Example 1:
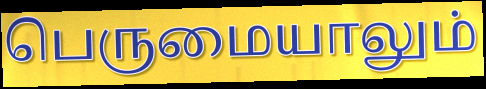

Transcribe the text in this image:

பெருமையாலும்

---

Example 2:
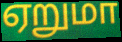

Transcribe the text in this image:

ஏறுமா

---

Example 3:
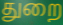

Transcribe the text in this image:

துறை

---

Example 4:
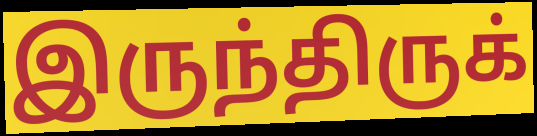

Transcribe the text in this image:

இருந்திருக்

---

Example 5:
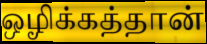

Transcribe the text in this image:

ஒழிக்கத்தான்